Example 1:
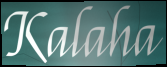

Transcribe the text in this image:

Kalaha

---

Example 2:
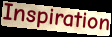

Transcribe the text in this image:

Inspiration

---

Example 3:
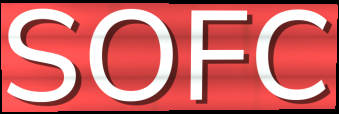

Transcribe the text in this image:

SOFC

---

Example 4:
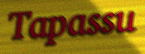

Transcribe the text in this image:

Tapassu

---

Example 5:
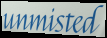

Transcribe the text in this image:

unmisted